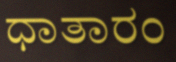
ಧಾತಾರಂ